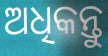
ଅଧିକନ୍ତୁ